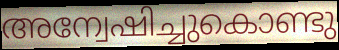
അന്വേഷിച്ചുകൊണ്ടു